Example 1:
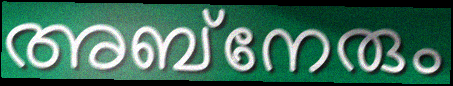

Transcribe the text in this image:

അബ്നേരും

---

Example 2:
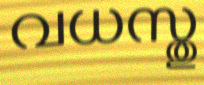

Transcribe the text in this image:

വധസ്തു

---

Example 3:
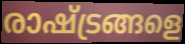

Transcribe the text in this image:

രാഷ്ട്രങ്ങളെ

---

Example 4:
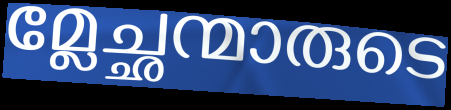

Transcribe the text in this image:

മ്ലേച്ഛന്മാരുടെ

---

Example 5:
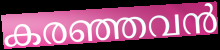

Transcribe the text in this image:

കരഞ്ഞവൻ